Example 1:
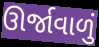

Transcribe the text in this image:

ઊર્જાવાળું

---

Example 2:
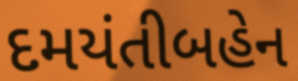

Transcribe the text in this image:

દમયંતીબહેન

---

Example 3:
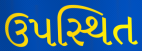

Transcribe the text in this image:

ઉપસ્થિત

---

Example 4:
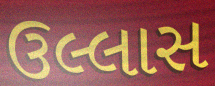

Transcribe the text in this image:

ઉલ્લાસ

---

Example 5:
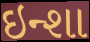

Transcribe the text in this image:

ઇન્શા